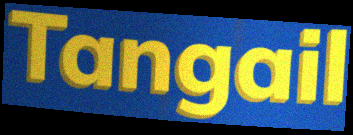
Tangail